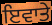
ਇਵਾਤੇ